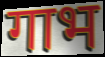
गाभ